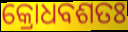
କ୍ରୋଧବଶତଃ